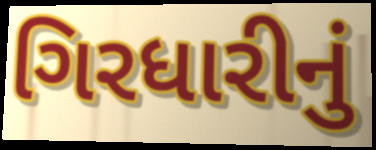
ગિરધારીનું